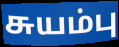
சுயம்பு